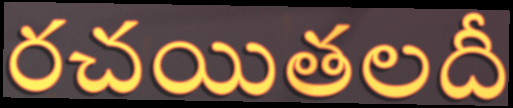
రచయితలదీ